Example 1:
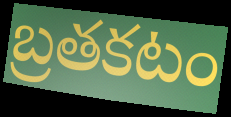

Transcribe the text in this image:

బ్రతకటం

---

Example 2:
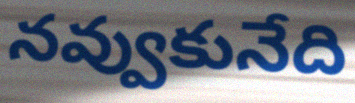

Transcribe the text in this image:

నవ్వుకునేది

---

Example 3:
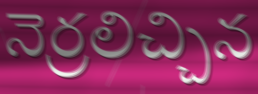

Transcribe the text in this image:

నెర్రలిచ్చిన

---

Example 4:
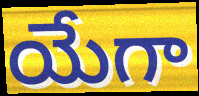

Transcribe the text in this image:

యేగా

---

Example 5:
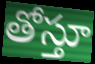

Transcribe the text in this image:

తోస్తూ